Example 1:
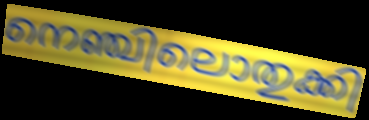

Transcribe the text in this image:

നെഞ്ചിലൊതുക്കി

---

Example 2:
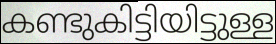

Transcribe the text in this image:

കണ്ടുകിട്ടിയിട്ടുള്ള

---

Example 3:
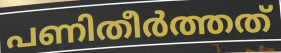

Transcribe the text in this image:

പണിതീർത്തത്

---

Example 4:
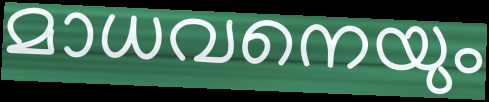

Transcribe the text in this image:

മാധവനെയും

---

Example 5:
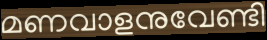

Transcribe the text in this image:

മണവാളനുവേണ്ടി